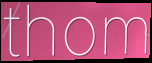
thom